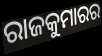
ରାଜକୁମାରର